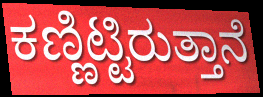
ಕಣ್ಣಿಟ್ಟಿರುತ್ತಾನೆ